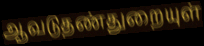
ஆவடுதண்துறையுள்